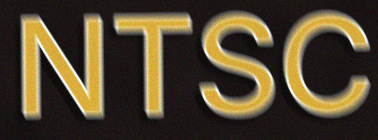
NTSC